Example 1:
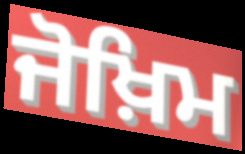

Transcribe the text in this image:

ਜੋਖ਼ਿਮ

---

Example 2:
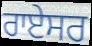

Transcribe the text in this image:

ਰਾਏਸਰ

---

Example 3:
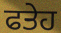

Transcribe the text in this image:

ਫਤੇਹ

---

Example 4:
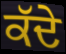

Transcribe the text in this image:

ਕੱਦੇ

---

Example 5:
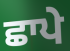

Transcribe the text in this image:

ਛਾਪੇ